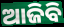
ଆଜିବି